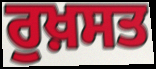
ਰੁਖ਼ਸਤ